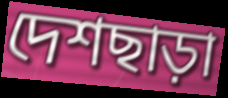
দেশছাড়া